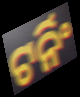
ଟର୍ନିଂ